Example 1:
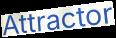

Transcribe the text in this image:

Attractor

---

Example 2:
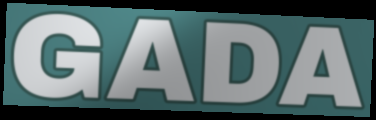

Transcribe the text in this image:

GADA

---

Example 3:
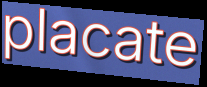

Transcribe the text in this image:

placate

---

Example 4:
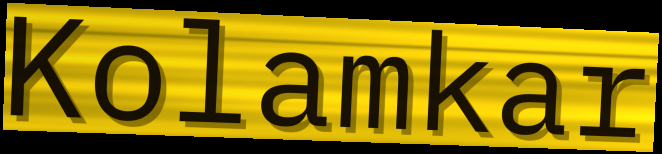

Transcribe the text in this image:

Kolamkar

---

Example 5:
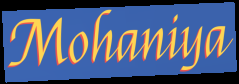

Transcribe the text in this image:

Mohaniya